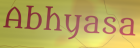
Abhyasa